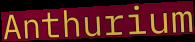
Anthurium